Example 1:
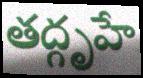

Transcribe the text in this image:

తద్గృహే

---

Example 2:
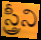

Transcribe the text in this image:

స్త్రీని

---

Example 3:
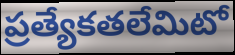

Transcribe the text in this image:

ప్రత్యేకతలేమిటో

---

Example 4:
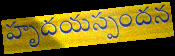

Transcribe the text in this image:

హృదయస్పందన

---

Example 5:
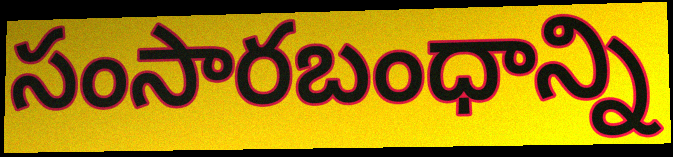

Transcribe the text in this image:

సంసారబంధాన్ని